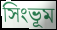
সিংভূম